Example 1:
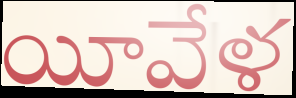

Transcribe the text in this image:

యీవేళ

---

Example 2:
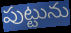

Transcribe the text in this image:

పుట్టును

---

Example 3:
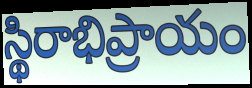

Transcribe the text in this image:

స్థిరాభిప్రాయం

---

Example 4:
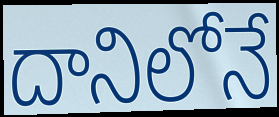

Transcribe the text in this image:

దానిలోనే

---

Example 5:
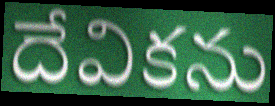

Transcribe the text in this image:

దేవికను